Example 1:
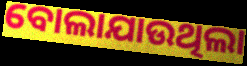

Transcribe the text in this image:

ବୋଲାଯାଉଥିଲା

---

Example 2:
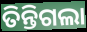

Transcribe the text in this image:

ତିନ୍ତିଗଲା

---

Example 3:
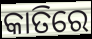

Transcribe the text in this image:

କାତିରେ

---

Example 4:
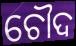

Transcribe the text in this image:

ଚୌଦ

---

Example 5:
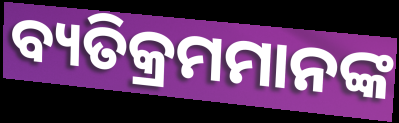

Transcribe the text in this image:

ବ୍ୟତିକ୍ରମମାନଙ୍କ